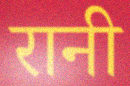
रानी